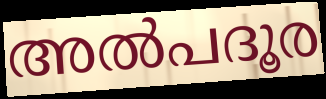
അൽപദൂര